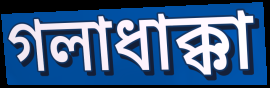
গলাধাক্কা